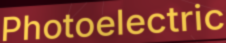
Photoelectric